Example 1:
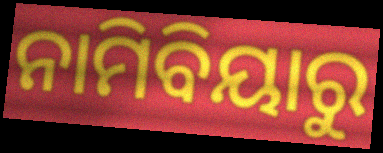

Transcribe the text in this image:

ନାମିବିୟାରୁ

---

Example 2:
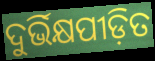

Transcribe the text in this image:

ଦୁର୍ଭିକ୍ଷପୀଡ଼ିତ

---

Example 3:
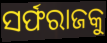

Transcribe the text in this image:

ସର୍ଫରାଜକୁ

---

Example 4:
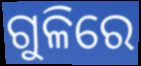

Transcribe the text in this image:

ଗୁଳିରେ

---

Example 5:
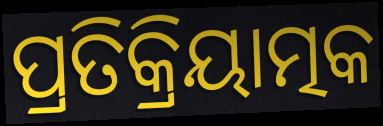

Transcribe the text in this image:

ପ୍ରତିକ୍ରିୟାତ୍ମକ